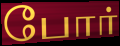
போர்